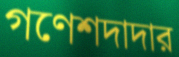
গণেশদাদার